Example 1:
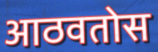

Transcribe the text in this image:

आठवतोस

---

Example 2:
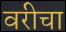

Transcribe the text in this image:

वरीचा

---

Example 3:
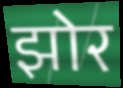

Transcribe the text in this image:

झोर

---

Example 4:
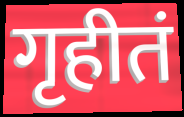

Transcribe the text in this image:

गृहीतं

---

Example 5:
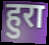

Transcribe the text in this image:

हुरा